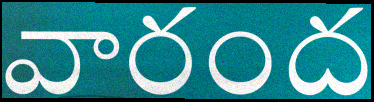
వారంద